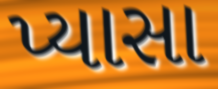
પ્યાસા